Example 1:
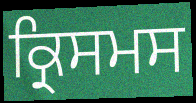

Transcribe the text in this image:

ਕ੍ਰਿਸਮਸ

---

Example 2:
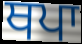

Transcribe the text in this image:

ਥਪਾ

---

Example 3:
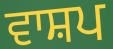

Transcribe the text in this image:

ਵਾਸ਼ਪ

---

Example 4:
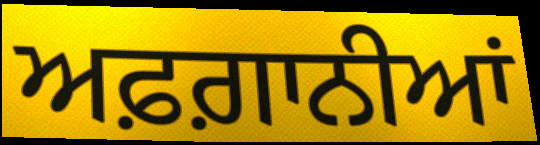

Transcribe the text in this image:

ਅਫ਼ਗ਼ਾਨੀਆਂ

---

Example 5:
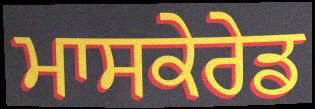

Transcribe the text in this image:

ਮਾਸਕੇਰੇਡ